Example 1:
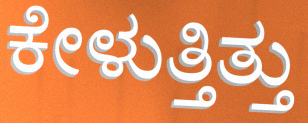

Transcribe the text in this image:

ಕೇಳುತ್ತಿತ್ತು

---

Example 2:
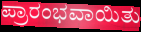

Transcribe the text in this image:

ಪ್ರಾರಂಭವಾಯಿತು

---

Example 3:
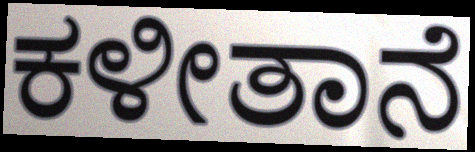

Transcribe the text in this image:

ಕಳೀತಾನೆ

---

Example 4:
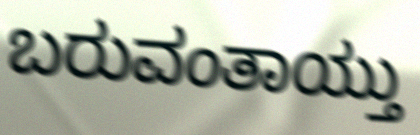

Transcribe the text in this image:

ಬರುವಂತಾಯ್ತು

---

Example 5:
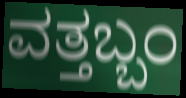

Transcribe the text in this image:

ವತ್ತಬ್ಬಂ